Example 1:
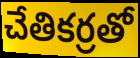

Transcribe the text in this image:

చేతికర్రతో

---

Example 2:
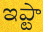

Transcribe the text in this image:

ఇప్టా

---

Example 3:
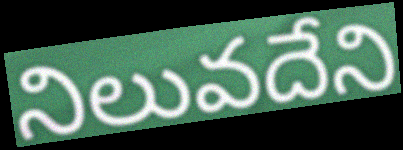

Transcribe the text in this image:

నిలువదేని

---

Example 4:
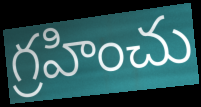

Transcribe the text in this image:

గ్రహించు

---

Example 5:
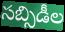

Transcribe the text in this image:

సబ్సిడీల